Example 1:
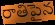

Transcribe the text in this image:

రాతిపైన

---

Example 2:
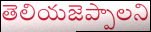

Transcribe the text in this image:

తెలియజెప్పాలని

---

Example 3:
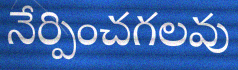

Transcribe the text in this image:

నేర్పించగలవు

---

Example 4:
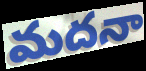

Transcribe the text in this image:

మదనా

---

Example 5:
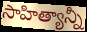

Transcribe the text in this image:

సాహిత్యాన్నీ